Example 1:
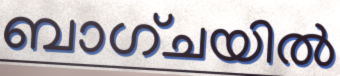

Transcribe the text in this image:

ബാഗ്ചയിൽ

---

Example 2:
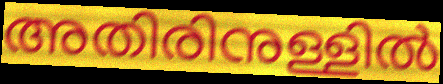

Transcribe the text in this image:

അതിരിനുള്ളിൽ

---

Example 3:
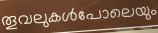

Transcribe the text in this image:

തൂവലുകൾപോലെയും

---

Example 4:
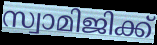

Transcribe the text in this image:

സ്വാമിജിക്ക്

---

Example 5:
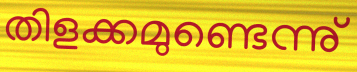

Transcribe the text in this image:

തിളക്കമുണ്ടെന്നു്